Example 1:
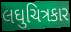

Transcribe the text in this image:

લઘુચિત્રકાર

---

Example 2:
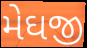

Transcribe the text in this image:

મેઘજી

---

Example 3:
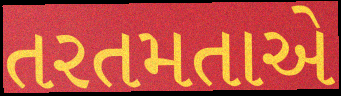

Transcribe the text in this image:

તરતમતાએ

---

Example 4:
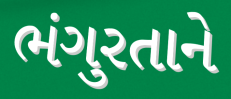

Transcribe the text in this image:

ભંગુરતાને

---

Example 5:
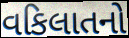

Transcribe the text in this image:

વકિલાતનો